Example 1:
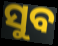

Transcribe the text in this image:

ସୁବ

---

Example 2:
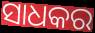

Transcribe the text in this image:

ସାଧକର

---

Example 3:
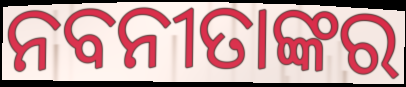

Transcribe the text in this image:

ନବନୀତାଙ୍କର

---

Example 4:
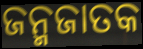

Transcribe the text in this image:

ଜନ୍ମଜାତକ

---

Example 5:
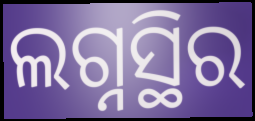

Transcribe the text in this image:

ଲଗ୍ନସ୍ଥିର